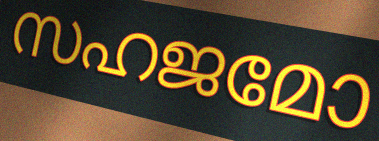
സഹജമോ